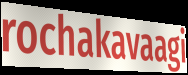
rochakavaagi